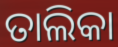
ତାଲିକା